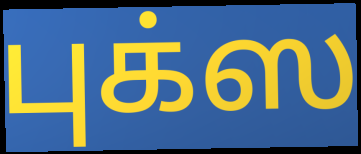
புக்ஸ